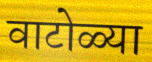
वाटोळ्या